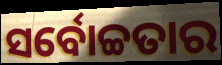
ସର୍ବୋଚ୍ଚତାର